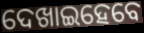
ଦେଖାଇହେବେ